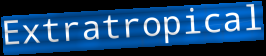
Extratropical